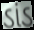
ડાંડ